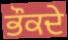
ਭੌਕਦੇ